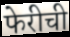
फेरीची